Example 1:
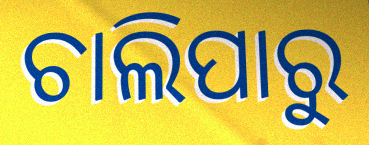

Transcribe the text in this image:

ଚାଲିପାରୁ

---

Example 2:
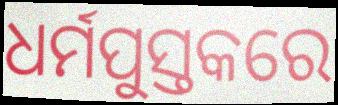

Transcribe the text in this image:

ଧର୍ମପୁସ୍ତକରେ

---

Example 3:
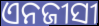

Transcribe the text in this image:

ଏନଜୀସୀ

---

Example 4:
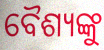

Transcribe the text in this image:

ବୈଶ୍ୟଙ୍କୁ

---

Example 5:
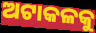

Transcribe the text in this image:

ଅଟାକଳକୁ